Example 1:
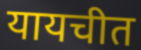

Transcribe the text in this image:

यायचीत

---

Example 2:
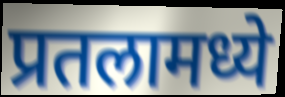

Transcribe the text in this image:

प्रतलामध्ये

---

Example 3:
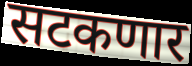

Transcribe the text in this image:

सटकणार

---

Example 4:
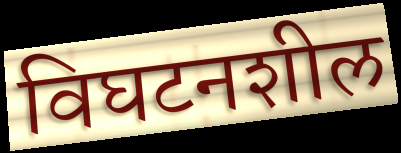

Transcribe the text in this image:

विघटनशील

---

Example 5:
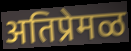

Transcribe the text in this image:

अतिप्रेमळ